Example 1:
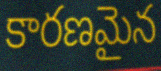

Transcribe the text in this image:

కారణమైన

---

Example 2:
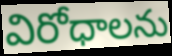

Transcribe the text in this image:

విరోధాలను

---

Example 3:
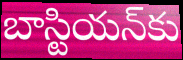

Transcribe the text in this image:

బాస్టియన్‌కు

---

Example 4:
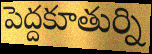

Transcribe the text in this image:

పెద్దకూతుర్ని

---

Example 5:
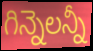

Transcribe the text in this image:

గిన్నెలన్నీ